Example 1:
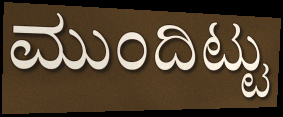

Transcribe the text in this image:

ಮುಂದಿಟ್ಟು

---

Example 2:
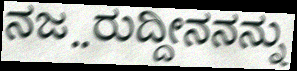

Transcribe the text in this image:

ನಜ಼ರುದ್ದೀನನನ್ನು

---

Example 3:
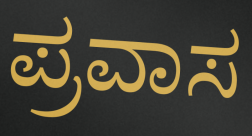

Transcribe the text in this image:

ಪ್ರವಾಸ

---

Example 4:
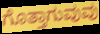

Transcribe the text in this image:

ಗೊತ್ತಾಗುವುವು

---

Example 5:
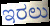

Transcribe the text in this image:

ಇರಲು